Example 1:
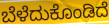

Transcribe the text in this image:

ಬೆಳೆದುಕೊಂಡಿದೆ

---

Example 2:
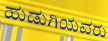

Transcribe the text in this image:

ಹುಡುಗಿಯವರು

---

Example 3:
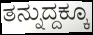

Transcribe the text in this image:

ತನ್ನುದ್ದಕ್ಕೂ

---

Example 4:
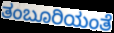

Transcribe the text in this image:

ತಂಬೂರಿಯಂತೆ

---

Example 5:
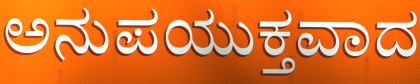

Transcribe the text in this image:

ಅನುಪಯುಕ್ತವಾದ